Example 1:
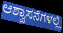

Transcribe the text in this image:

ಆಶ್ವಾಸನೆಗಳಲ್ಲಿ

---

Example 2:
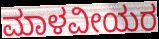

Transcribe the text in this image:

ಮಾಳವೀಯರ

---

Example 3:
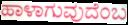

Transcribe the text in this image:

ಹಾಳಾಗುವುದೆಂಬ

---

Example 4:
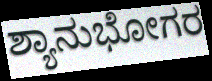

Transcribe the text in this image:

ಶ್ಯಾನುಭೋಗರ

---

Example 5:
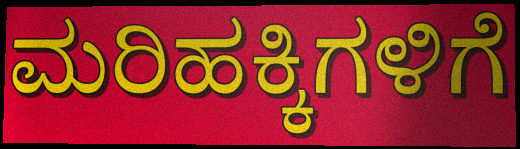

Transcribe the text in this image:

ಮರಿಹಕ್ಕಿಗಳಿಗೆ